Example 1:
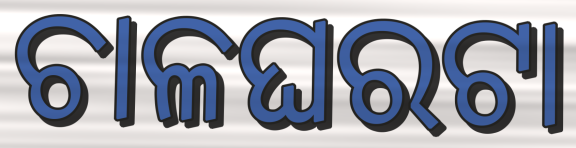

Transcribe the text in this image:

ଚାଳଘରଟା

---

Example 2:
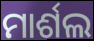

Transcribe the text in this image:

ମାର୍ଶଲ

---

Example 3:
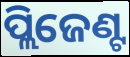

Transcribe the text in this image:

ପ୍ଲିଜେଣ୍ଟ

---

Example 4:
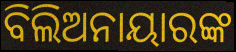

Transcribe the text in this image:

ବିଲିଅନାୟାରଙ୍କ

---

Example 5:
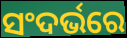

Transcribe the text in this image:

ସଂଦର୍ଭରେ